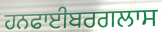
ਹਨਫਾਈਬਰਗਲਾਸ